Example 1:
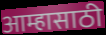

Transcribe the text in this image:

आम्हासाठी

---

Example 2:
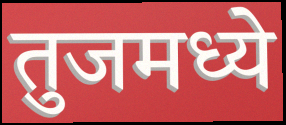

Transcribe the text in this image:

तुजमध्ये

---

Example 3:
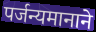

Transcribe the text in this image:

पर्जन्यमानाने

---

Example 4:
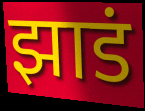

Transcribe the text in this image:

झाडं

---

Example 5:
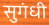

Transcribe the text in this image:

सुगंधी